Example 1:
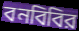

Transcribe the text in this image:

বনবিবির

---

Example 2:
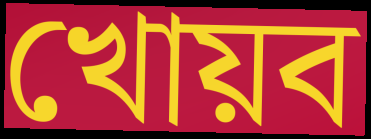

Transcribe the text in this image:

খোয়ব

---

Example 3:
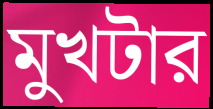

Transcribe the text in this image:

মুখটার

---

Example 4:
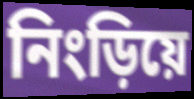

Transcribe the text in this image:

নিংড়িয়ে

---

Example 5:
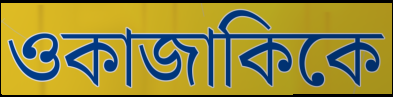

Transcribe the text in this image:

ওকাজাকিকে